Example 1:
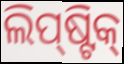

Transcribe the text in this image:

ଲିପ୍‌ଷ୍ଟିକ୍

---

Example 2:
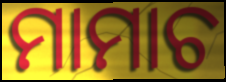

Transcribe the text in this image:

ମାମାଚ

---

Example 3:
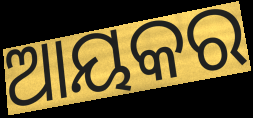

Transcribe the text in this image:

ଆୟକର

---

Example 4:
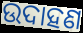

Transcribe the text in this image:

ଉଦାହଣ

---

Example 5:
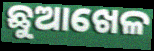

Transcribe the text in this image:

ଛୁଆଖେଳ